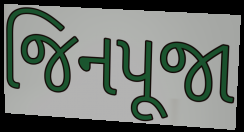
જિનપૂજા